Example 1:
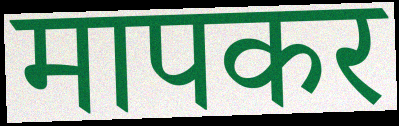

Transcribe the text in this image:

मापकर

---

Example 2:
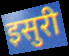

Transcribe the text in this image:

इसुरी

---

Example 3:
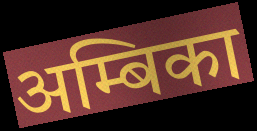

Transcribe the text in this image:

अम्बिका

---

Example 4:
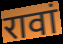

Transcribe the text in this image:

रावां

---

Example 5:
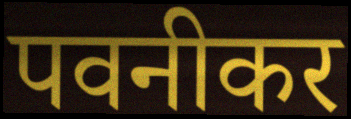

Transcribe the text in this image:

पवनीकर